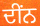
ਦੀਂਨ